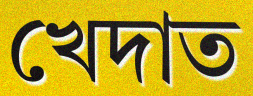
খেদাত